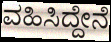
ವಹಿಸಿದ್ದೇನೆ